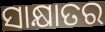
ସାକ୍ଷାତର